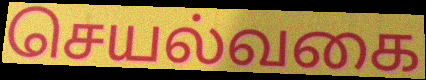
செயல்வகை